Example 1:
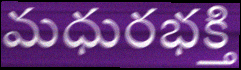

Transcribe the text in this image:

మధురభక్తి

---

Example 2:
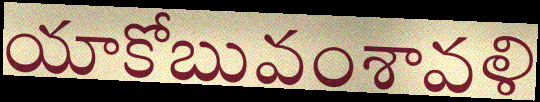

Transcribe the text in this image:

యాకోబువంశావళి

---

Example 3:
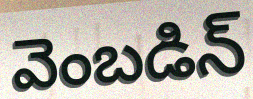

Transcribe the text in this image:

వెంబడిన్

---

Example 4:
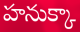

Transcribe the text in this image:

హనుక్కా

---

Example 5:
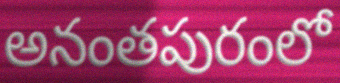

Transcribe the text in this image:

అనంతపురంలో